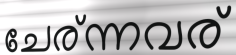
ചേര്ന്നവര്